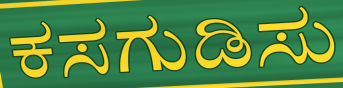
ಕಸಗುಡಿಸು